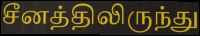
சீனத்திலிருந்து